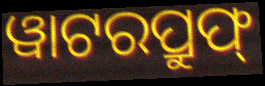
ୱାଟରପ୍ରୁଫ୍